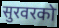
सुरवरको